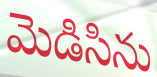
మెడిసిను